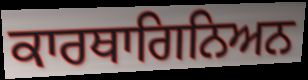
ਕਾਰਥਾਗਿਨਿਅਨ